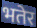
भतेर